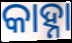
କାହ୍ନା